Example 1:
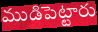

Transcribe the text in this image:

ముడిపెట్టారు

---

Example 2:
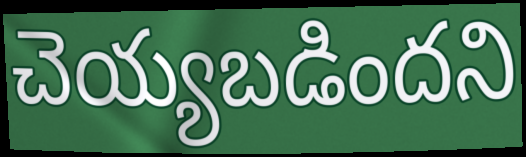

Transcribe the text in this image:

చెయ్యబడిందని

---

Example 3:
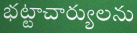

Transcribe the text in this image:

భట్టాచార్యులను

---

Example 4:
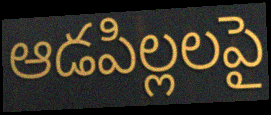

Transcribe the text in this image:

ఆడపిల్లలపై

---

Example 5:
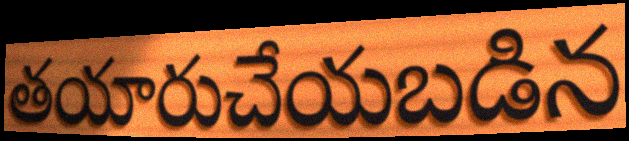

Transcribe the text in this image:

తయారుచేయబడిన